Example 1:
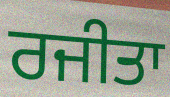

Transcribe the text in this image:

ਰਜੀਤਾ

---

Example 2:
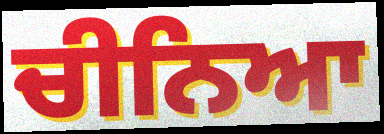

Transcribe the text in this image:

ਚੀਨਿਆ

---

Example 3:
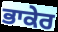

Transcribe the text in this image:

ਭਾਕੇਰ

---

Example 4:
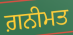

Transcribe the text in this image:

ਗ਼ਨੀਮਤ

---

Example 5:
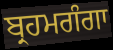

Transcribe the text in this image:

ਬ੍ਰਹਮਗੰਗਾ